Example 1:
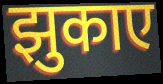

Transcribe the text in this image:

झुकाए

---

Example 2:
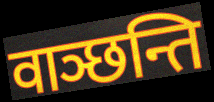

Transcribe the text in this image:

वाञ्छन्ति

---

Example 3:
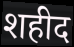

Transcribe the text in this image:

शहीद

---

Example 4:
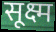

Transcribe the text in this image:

सूक्ष्म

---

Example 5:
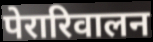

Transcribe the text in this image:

पेरारिवालन